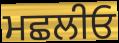
ਮਛਲੀਓ